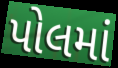
પોલમાં